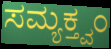
ಸಮ್ಯಕ್ತ್ವಂ